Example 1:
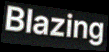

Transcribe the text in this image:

Blazing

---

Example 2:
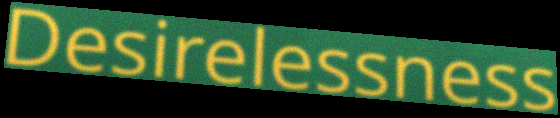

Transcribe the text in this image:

Desirelessness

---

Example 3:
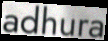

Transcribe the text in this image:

adhura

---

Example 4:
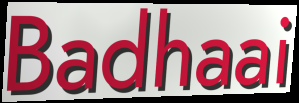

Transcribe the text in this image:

Badhaai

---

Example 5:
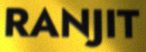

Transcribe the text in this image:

RANJIT